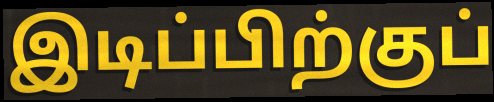
இடிப்பிற்குப்